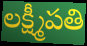
లక్ష్మీపతి